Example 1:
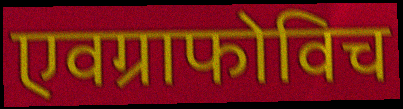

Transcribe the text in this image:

एवग्राफोविच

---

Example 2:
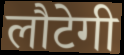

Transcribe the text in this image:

लौटेगी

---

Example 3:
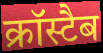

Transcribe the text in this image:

क्रॉस्टैब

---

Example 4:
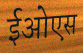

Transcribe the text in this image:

ईओएस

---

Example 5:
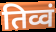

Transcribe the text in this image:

तिव्वं